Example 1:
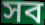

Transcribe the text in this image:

সব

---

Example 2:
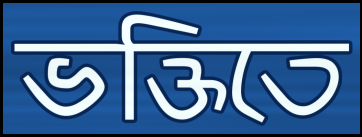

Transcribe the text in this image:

ভক্তিতে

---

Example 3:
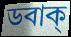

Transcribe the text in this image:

ডবাক্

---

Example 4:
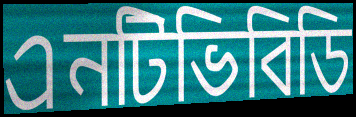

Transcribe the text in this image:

এনটিভিবিডি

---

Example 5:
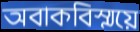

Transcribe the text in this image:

অবাকবিস্ময়ে